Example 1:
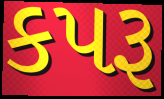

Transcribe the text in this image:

કપરૂ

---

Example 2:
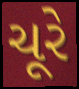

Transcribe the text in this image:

ચૂરે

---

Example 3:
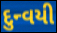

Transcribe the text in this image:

દુન્વયી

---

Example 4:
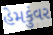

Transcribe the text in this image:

હેમકુંવર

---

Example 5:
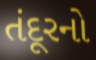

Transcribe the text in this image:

તંદૂરનો